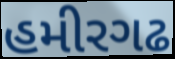
હમીરગઢ